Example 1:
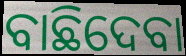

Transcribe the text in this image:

ବାଛିଦେବା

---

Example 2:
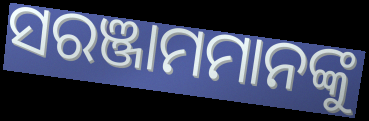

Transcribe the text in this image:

ସରଞ୍ଜାମମାନଙ୍କୁ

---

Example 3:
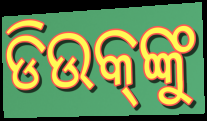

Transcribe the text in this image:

ଡିଉକ୍‌ଙ୍କୁ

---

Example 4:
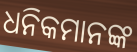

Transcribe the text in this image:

ଧନିକମାନଙ୍କ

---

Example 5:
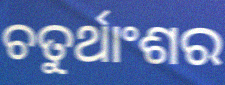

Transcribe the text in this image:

ଚତୁର୍ଥାଂଶର